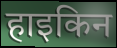
हाइकिन